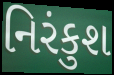
નિરંકુશ